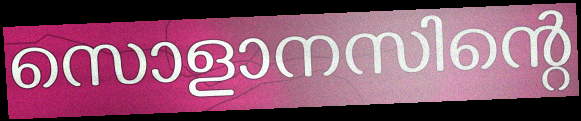
സൊളാനസിന്റെ